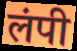
लंपी